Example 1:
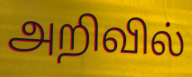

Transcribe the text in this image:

அறிவில்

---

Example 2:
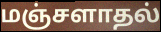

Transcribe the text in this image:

மஞ்சளாதல்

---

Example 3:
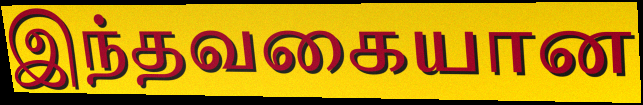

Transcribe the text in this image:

இந்தவகையான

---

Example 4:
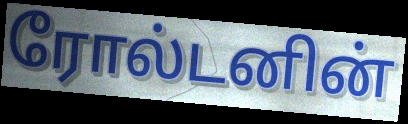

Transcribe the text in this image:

ரோல்டனின்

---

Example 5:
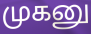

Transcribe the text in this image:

முகனு